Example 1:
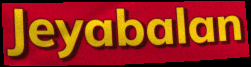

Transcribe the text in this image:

Jeyabalan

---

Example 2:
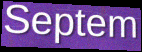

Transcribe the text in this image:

Septem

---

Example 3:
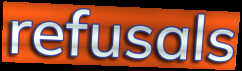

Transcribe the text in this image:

refusals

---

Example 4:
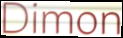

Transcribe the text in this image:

Dimon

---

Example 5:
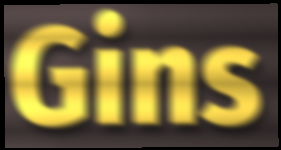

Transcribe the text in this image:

Gins